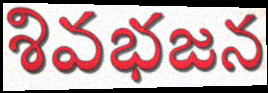
శివభజన